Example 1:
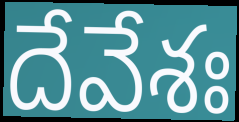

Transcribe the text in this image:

దేవేశః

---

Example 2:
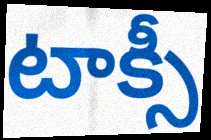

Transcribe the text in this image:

టాక్సీ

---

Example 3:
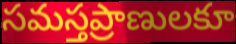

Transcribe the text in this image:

సమస్తప్రాణులకూ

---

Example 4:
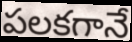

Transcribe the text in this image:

పలకగానే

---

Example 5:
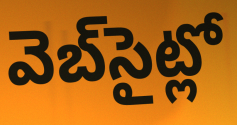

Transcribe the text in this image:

వెబ్‌సైట్లో